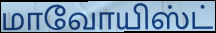
மாவோயிஸ்ட்